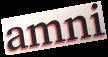
amni